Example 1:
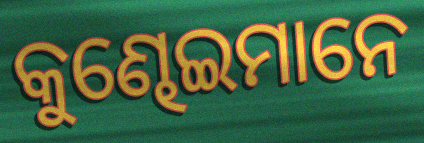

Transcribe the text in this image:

କୁଣ୍ଢେଇମାନେ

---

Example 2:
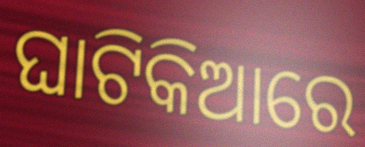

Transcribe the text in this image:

ଘାଟିକିଆରେ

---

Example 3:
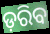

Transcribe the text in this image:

ଡ଼ରିବ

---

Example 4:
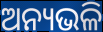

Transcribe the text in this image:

ଅନ୍ୟଭଳି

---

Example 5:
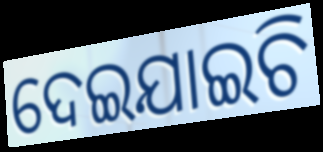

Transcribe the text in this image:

ଦେଇଯାଇଚି